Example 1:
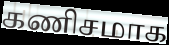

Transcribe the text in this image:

கணிசமாக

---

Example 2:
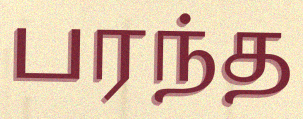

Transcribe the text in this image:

பரந்த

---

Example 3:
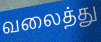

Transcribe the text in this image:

வலைத்து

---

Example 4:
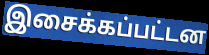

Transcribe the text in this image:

இசைக்கப்பட்டன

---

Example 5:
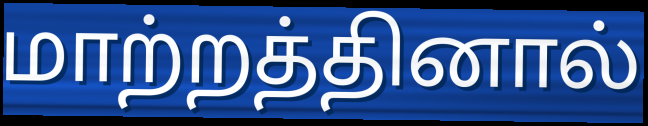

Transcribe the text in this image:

மாற்றத்தினால்